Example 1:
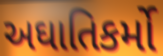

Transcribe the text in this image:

અઘાતિકર્મો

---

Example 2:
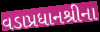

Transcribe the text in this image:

વડાપ્રધાનશ્રીના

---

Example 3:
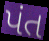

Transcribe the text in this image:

પંત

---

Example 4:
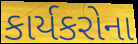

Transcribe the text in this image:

કાર્યકરોના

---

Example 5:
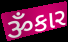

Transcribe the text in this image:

ૐકાર